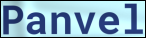
Panvel